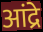
आंद्रे